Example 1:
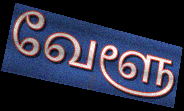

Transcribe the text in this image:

வேளூ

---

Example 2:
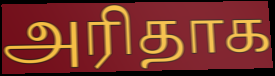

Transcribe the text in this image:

அரிதாக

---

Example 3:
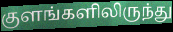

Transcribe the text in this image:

குளங்களிலிருந்து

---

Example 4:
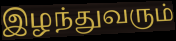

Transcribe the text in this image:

இழந்துவரும்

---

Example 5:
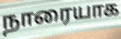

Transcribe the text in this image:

நாரையாக